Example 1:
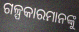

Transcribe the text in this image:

ଗଳ୍ପକାରମାନଙ୍କୁ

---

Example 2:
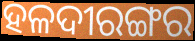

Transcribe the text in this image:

ହଳଦୀରଙ୍ଗର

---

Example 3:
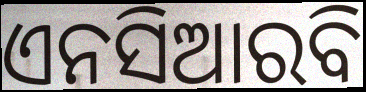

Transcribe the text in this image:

ଏନସିଆରବି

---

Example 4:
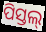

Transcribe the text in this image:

ପିସ୍ତଲ୍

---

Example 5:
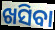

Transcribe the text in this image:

ଖସିବା